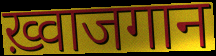
ख़्वाजगान